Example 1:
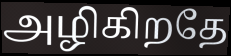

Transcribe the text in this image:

அழிகிறதே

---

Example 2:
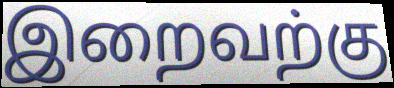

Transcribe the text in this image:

இறைவற்கு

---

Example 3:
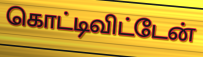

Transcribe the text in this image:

கொட்டிவிட்டேன்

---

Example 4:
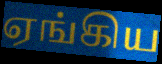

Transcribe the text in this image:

ஏங்கிய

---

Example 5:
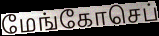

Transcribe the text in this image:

மேங்கோசெப்